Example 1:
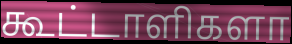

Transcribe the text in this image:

கூட்டாளிகளா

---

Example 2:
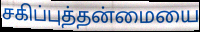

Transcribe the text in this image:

சகிப்புத்தன்மையை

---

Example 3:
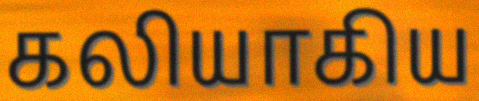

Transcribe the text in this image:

கலியாகிய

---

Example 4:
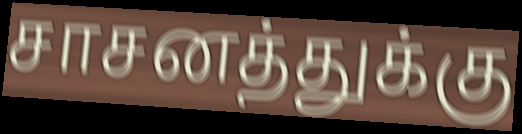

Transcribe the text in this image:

சாசனத்துக்கு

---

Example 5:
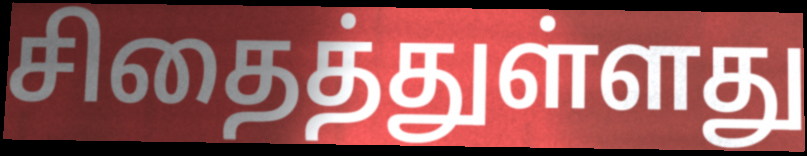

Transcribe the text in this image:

சிதைத்துள்ளது